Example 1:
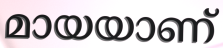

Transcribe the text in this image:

മായയാണ്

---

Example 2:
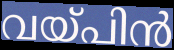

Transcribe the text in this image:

വയ്പിൻ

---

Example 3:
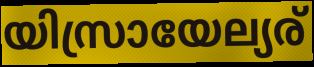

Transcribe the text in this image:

യിസ്രായേല്യര്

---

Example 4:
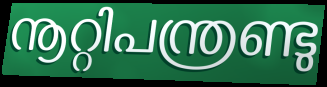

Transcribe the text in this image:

നൂറ്റിപന്ത്രണ്ടു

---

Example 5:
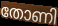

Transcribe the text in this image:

തോണി